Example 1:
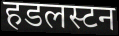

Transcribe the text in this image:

हडलस्टन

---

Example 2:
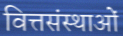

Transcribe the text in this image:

वित्तसंस्थाओं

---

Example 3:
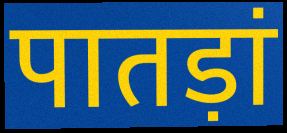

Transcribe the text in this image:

पातड़ां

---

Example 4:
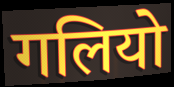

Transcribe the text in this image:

गलियो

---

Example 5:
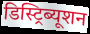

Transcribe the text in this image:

डिस्ट्रिब्यूशन